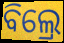
ବିଲ୍ରେ